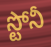
స్టోనీ